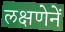
लक्षणेनें